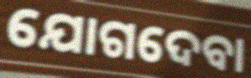
ଯୋଗଦେବା